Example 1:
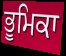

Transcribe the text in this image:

ਭੂਮਿਕਾ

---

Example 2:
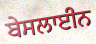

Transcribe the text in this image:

ਬੇਸਲਾਈਨ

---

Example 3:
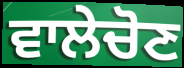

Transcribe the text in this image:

ਵਾਲੇਚੋਣ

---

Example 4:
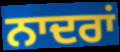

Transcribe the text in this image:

ਨਾਦਰਾਂ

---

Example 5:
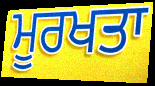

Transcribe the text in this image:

ਮੂਰਖਤਾ